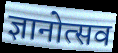
ज्ञानोत्सव